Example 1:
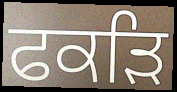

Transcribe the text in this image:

ਫਕੜਿ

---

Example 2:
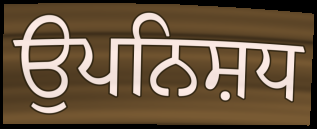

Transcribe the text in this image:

ਉਪਨਿਸ਼ਧ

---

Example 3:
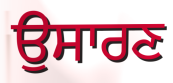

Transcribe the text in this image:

ਉਸਾਰਣ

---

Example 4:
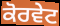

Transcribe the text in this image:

ਕੋਰਵੇਟ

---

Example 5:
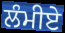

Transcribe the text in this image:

ਲੰਮੀਏ